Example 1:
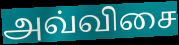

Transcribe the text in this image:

அவ்விசை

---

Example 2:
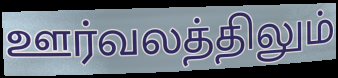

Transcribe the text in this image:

ஊர்வலத்திலும்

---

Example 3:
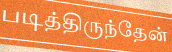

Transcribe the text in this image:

படித்திருந்தேன்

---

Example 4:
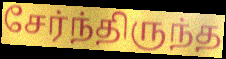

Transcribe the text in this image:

சேர்ந்திருந்த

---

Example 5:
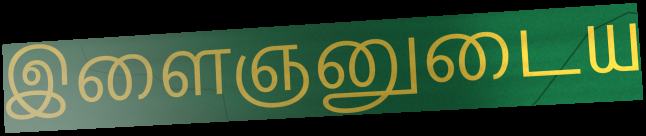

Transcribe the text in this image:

இளைஞனுடைய